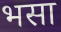
भसा